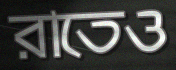
রাতেও